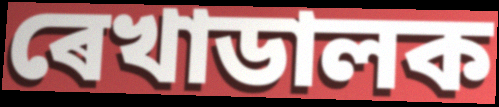
ৰেখাডালক